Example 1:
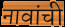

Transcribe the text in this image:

नावांची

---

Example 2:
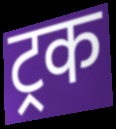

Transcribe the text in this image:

ट्रक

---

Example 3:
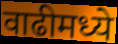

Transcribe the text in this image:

वाढीमध्ये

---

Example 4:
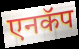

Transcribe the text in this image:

एनकॅप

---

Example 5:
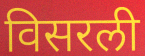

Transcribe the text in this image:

विसरली